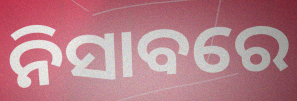
ନିସାବରେ